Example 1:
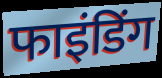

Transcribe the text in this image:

फाइंडिंग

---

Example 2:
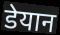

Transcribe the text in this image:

डेयान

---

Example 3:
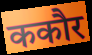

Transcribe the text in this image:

ककौर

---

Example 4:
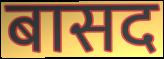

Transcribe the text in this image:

बासद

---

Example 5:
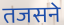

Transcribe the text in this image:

तजसने